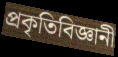
প্রকৃতিবিজ্ঞানী